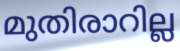
മുതിരാറില്ല